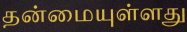
தன்மையுள்ளது